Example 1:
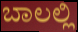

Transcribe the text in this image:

ಬಾಲಲ್ಲಿ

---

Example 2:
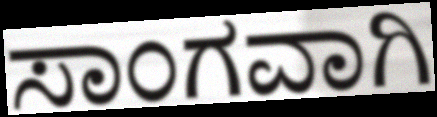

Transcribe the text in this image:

ಸಾಂಗವಾಗಿ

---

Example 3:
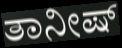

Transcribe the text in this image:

ತಾನೀಷ್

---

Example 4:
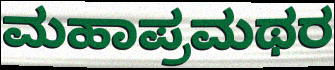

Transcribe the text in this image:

ಮಹಾಪ್ರಮಥರ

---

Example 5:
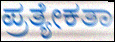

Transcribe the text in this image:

ಪ್ರತ್ಯೇಕತಾ